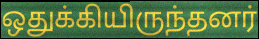
ஒதுக்கியிருந்தனர்